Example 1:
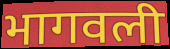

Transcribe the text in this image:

भागवली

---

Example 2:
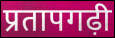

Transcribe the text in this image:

प्रतापगढ़ी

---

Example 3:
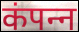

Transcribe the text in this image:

कंपन्न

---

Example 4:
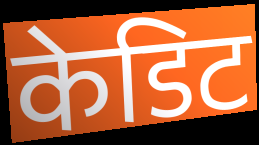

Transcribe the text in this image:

केडिट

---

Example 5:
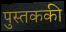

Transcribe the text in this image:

पुस्तककी